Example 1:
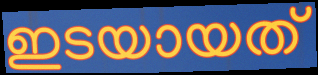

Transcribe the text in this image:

ഇടയായത്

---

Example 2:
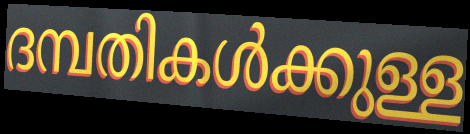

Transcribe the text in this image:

ദമ്പതികൾക്കുള്ള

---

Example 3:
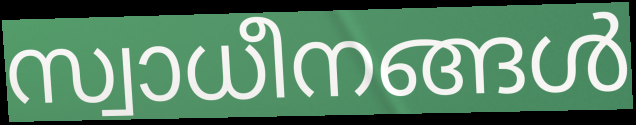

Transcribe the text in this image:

സ്വാധീനങ്ങൾ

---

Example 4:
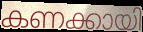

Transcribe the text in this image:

കണക്കായി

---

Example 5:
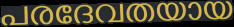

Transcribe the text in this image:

പരദേവതയായ